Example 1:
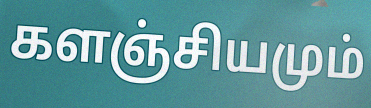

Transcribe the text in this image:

களஞ்சியமும்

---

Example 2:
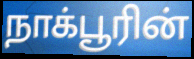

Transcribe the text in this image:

நாக்பூரின்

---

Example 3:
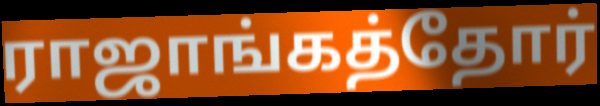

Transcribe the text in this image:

ராஜாங்கத்தோர்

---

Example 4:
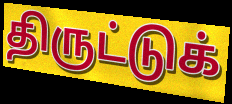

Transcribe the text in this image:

திருட்டுக்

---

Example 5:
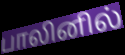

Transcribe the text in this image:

பாலினில்